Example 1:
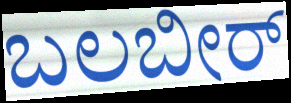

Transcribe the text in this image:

ಬಲಬೀರ್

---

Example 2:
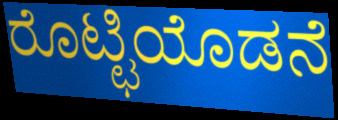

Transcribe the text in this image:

ರೊಟ್ಟಿಯೊಡನೆ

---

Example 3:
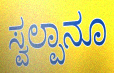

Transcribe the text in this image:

ಸ್ವಲ್ಪಾನೂ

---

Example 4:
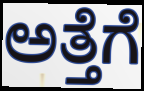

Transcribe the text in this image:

ಅತ್ತೆಗೆ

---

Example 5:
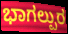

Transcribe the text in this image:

ಭಾಗಲ್ಪುರ